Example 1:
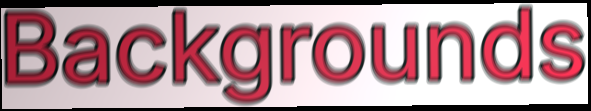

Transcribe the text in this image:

Backgrounds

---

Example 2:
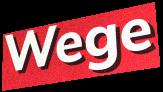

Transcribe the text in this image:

Wege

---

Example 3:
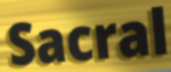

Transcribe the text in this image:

Sacral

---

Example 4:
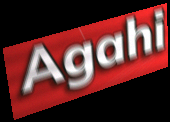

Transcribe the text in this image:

Agahi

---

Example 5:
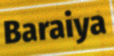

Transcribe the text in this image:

Baraiya